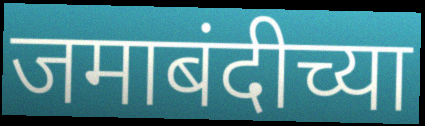
जमाबंदीच्या